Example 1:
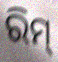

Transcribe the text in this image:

ରିମ୍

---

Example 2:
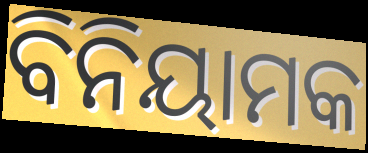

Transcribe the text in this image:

ବିନିୟାମକ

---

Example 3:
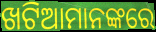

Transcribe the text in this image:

ଖଟିଆମାନଙ୍କରେ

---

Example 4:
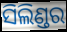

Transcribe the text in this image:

ସିଲିଣ୍ଡର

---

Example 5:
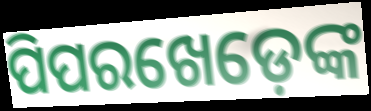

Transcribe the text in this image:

ପିପରଖେଡ଼େଙ୍କ